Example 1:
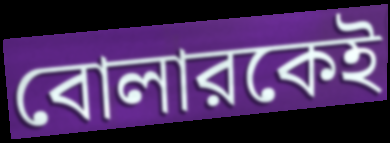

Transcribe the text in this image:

বোলারকেই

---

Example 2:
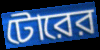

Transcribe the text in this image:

টোরের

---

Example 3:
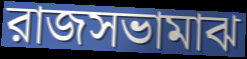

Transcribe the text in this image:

রাজসভামাঝ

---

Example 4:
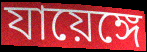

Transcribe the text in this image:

যায়েঙ্গে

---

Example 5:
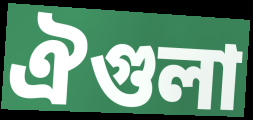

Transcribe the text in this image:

ঐগুলা